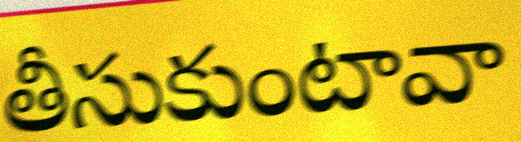
తీసుకుంటావా